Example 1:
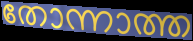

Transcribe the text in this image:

തോന്നാത്ത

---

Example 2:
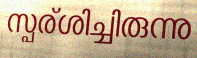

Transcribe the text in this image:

സ്പര്ശിച്ചിരുന്നു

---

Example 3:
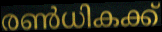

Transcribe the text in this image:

രൺധികക്ക്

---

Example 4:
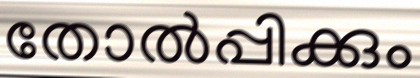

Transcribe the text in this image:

തോൽപ്പിക്കും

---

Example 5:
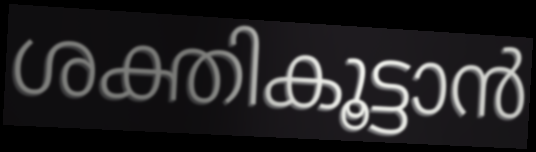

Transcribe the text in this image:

ശക്തികൂട്ടാൻ